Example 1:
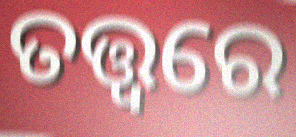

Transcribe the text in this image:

ତତ୍ତ୍ୱରେ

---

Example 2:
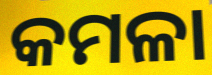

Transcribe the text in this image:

କମଳା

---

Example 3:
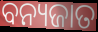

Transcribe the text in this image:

ବନ୍ୟଜାତ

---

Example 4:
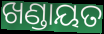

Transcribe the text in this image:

ଖଣ୍ଡାୟତ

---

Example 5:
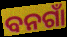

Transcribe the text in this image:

ବନଗାଁ